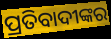
ପ୍ରତିବାଦୀଙ୍କର